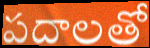
పదాలతో